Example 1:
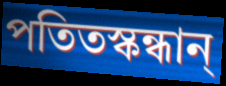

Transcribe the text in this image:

পতিতস্কন্ধান্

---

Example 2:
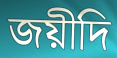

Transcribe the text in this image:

জয়ীদি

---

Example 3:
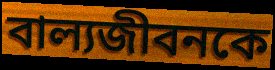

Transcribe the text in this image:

বাল্যজীবনকে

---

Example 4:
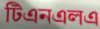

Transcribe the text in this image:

টিএনএলএ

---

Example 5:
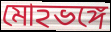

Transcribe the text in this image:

মোহভঙ্গে